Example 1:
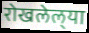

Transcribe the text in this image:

रोखलेल्या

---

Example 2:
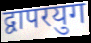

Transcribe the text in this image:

द्वापरयुग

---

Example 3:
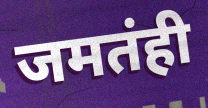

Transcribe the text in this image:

जमतंही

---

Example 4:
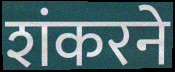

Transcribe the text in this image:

शंकरने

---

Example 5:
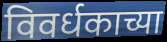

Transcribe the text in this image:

विवर्धकाच्या